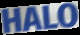
HALO